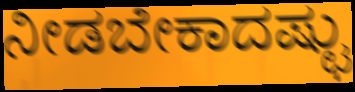
ನೀಡಬೇಕಾದಷ್ಟು